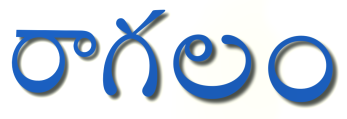
రాగలం